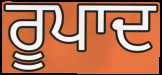
ਰੂਪਾਦ